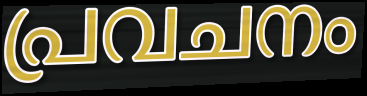
പ്രവചനം